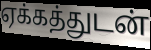
ஏக்கத்துடன்